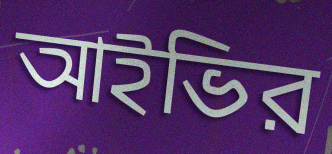
আইভির